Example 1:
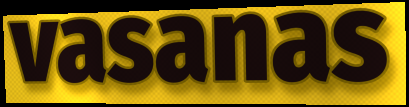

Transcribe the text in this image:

vasanas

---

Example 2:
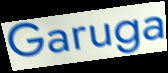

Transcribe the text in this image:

Garuga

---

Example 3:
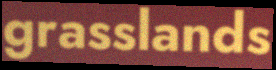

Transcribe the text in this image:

grasslands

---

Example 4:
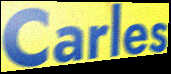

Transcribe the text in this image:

Carles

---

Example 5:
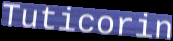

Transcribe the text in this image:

Tuticorin